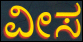
ವೀಸ